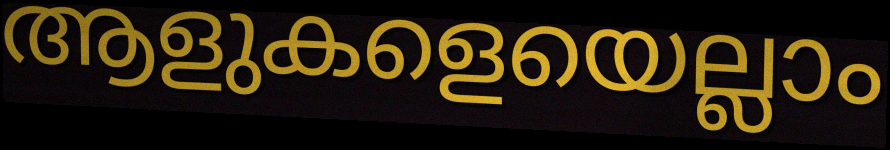
ആളുകളെയെല്ലാം